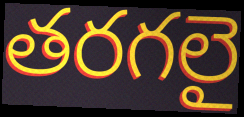
తరగలై